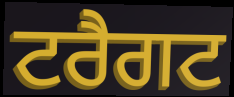
ਟਰੈਗਟ